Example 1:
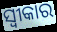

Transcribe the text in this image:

ସ୍ଵୀକାର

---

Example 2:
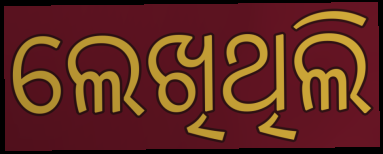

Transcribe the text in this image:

ଲେଖିଥିଲି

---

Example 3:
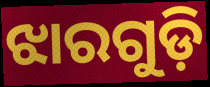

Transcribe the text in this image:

ଝାରଗୁଡ଼ି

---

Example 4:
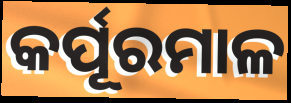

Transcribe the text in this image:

କର୍ପୂରମାଳ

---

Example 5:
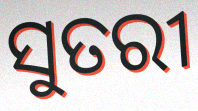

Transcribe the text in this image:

ସୁତରୀ